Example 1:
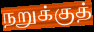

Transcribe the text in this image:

நறுக்குத்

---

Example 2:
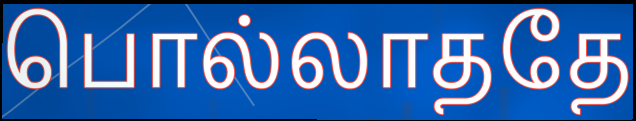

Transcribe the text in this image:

பொல்லாததே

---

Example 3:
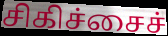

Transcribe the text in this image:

சிகிச்சைச்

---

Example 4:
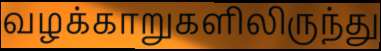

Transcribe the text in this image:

வழக்காறுகளிலிருந்து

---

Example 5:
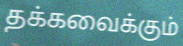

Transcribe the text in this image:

தக்கவைக்கும்